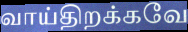
வாய்திறக்கவே